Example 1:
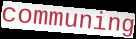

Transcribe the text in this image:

communing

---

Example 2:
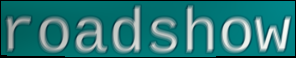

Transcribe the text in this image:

roadshow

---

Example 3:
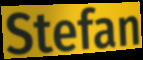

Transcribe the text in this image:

Stefan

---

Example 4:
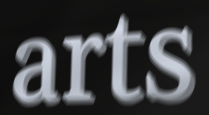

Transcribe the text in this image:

arts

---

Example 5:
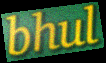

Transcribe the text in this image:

bhul